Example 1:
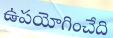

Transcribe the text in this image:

ఉపయోగించేది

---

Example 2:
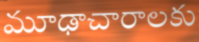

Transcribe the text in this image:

మూఢాచారాలకు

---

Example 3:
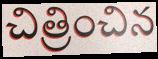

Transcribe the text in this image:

చిత్రించిన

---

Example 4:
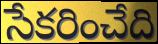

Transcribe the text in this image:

సేకరించేది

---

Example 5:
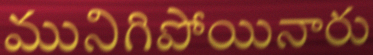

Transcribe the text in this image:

మునిగిపోయినారు